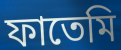
ফাতেমি